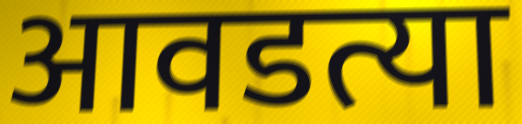
आवडत्या